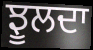
ਝੂਲਦਾ